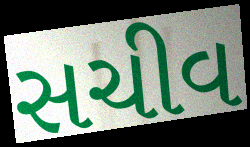
સચીવ